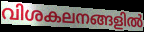
വിശകലനങ്ങളിൽ